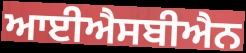
ਆਈਐਸਬੀਐਨ